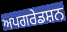
ਅਪਗਰੇਡਸ਼ਨ